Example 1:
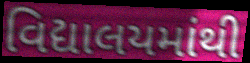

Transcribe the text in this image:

વિદ્યાલયમાંથી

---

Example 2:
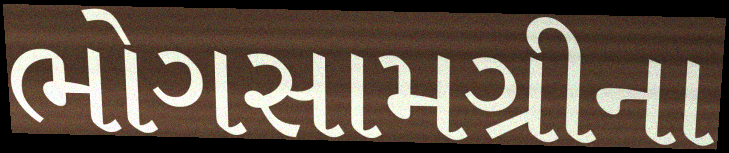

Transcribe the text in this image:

ભોગસામગ્રીના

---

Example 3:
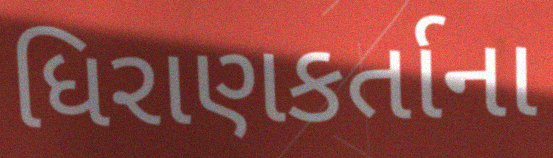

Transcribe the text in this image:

ધિરાણકર્તાના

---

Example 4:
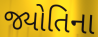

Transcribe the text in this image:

જ્યોતિના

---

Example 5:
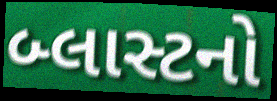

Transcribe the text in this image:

બ્લાસ્ટનો